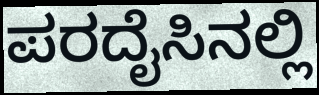
ಪರದೈಸಿನಲ್ಲಿ